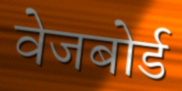
वेजबोर्ड